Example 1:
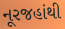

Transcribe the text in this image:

નૂરજહાંથી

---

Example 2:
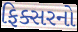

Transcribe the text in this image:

ફિક્સરનો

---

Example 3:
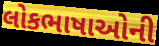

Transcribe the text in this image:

લોકભાષાઓની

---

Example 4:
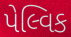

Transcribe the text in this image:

પેલ્વિક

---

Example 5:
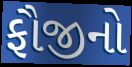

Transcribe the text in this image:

ફૌજીનો